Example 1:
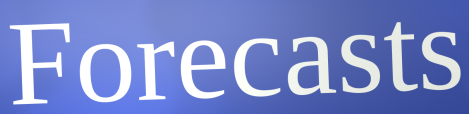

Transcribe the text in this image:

Forecasts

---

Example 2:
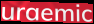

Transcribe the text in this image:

uraemic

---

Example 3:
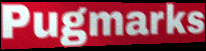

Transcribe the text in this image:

Pugmarks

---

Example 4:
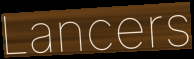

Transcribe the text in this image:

Lancers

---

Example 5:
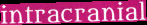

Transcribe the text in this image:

intracranial